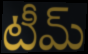
టీమ్